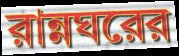
রান্নঘরের